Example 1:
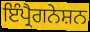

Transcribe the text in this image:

ਇੰਪ੍ਰੈਗਨੇਸ਼ਨ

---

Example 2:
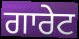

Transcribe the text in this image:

ਗਾਰੇਟ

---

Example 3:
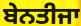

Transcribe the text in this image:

ਬੇਨਤੀਜਾ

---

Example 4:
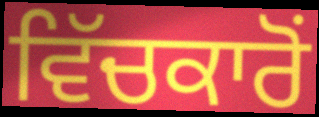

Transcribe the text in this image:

ਵਿੱਚਕਾਰੋਂ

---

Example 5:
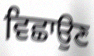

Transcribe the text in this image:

ਵਿਛਾਉਣ